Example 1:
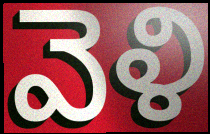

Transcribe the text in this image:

వెళి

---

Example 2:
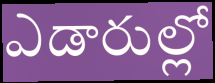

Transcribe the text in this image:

ఎడారుల్లో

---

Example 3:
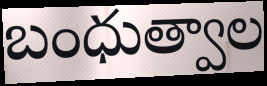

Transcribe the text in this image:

బంధుత్వాల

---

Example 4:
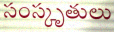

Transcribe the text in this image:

సంస్కృతులు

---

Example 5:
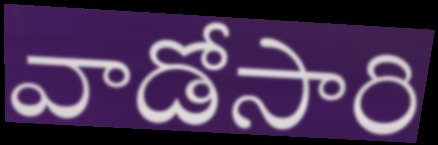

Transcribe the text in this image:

వాడోసారి